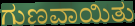
ಗುಣವಾಯಿತು